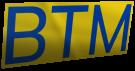
BTM